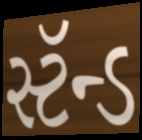
સ્ટૅન્ડ